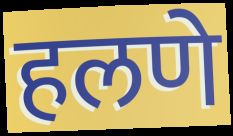
हलणे